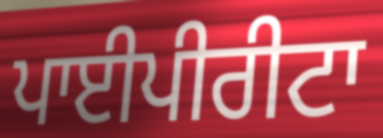
ਪਾਈਪੀਰੀਟਾ